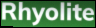
Rhyolite